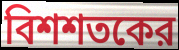
বিশশতকের